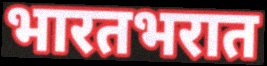
भारतभरात